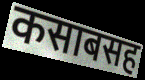
कसाबसह